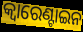
କ୍ୱାରେଣ୍ଟାଇନ